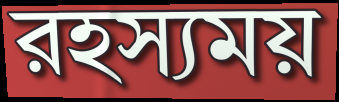
রহস্যময়